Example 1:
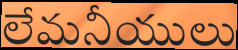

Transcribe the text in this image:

లేమనీయులు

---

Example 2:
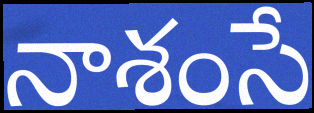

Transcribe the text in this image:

నాశంసే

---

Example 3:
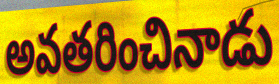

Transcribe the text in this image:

అవతరించినాడు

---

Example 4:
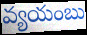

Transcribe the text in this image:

వ్యయంబు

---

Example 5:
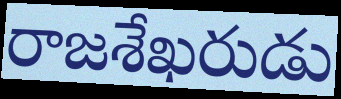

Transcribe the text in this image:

రాజశేఖరుడు